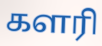
களரி